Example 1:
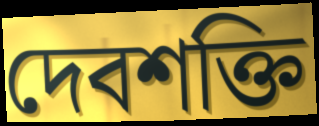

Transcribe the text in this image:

দেবশক্তি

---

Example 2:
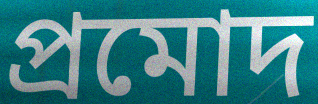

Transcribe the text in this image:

প্রমোদ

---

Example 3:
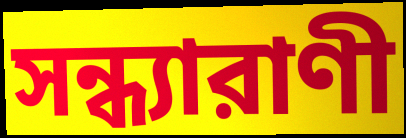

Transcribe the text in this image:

সন্ধ্যারাণী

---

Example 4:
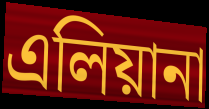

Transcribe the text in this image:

এলিয়ানা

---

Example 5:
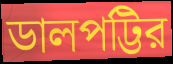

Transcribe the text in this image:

ডালপট্টির